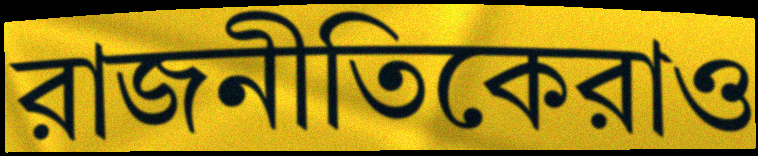
রাজনীতিকেরাও